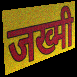
जख्मी